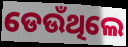
ଡେଉଁଥିଲେ